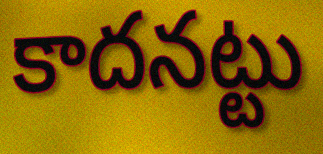
కాదనట్టు